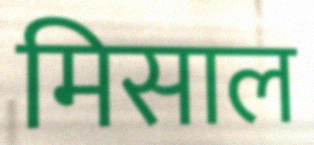
मिसाल